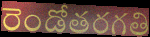
రెండోతరగతి